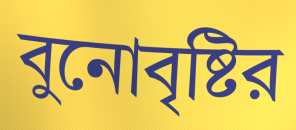
বুনোবৃষ্টির